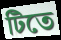
টিতে